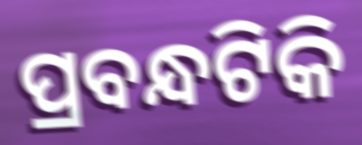
ପ୍ରବନ୍ଧଟିକି